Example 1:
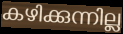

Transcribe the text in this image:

കഴിക്കുന്നില്ല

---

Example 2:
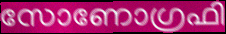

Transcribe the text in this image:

സോണോഗ്രഫി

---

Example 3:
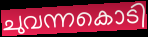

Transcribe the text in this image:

ചുവന്നകൊടി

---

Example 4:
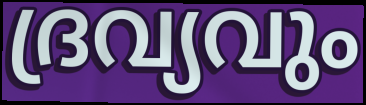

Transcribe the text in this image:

ദ്രവ്യവും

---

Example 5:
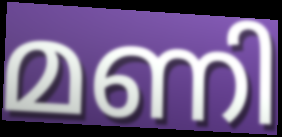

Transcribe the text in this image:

മണി